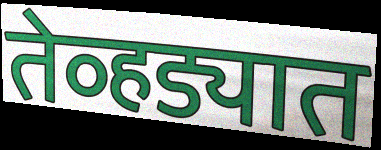
तेव्हड्यात